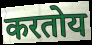
करतोय